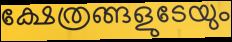
ക്ഷേത്രങ്ങളുടേയും